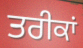
ਤਰੀਕਾਂ